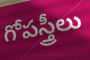
గోపస్త్రీలు